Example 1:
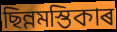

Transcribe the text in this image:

ছিন্নমস্তিকাৰ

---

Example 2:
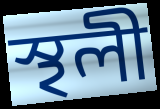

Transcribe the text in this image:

স্থলী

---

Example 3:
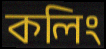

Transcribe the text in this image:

কলিং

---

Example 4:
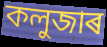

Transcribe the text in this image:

কলুজাৰ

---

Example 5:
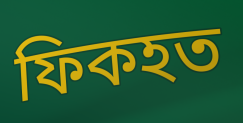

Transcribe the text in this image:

ফিকহত